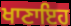
ਖਾਣਾਇਹ